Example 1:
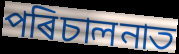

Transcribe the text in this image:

পৰিচালনাত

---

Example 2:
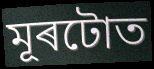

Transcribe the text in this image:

মূৰটোত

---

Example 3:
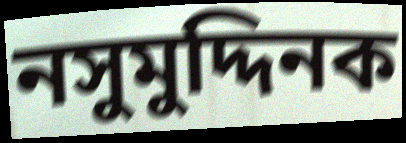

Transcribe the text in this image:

নসুমুদ্দিনক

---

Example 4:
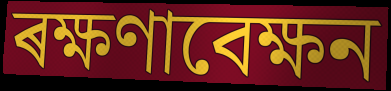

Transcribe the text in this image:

ৰক্ষণাবেক্ষন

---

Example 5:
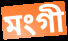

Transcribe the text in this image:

মংগী